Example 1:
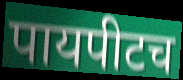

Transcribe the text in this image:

पायपीटच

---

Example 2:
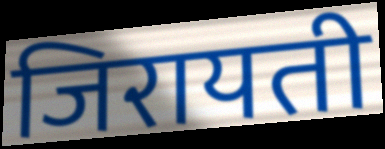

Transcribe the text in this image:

जिरायती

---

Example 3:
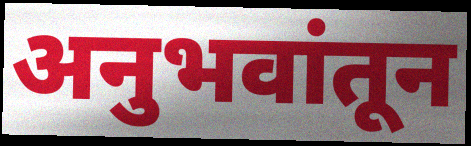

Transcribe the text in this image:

अनुभवांतून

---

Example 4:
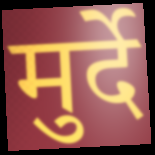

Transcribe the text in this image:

मुर्दे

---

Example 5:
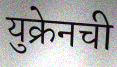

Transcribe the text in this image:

युक्रेनची